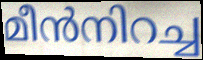
മീൻനിറച്ച